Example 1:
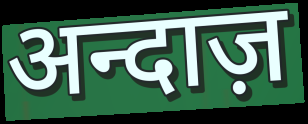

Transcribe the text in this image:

अन्दाज़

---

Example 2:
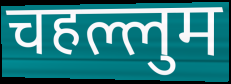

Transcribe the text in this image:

चहल्लुम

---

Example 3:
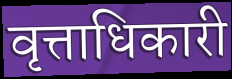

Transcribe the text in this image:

वृत्ताधिकारी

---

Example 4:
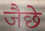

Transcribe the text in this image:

जैछे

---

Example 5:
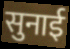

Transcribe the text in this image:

सुनाई